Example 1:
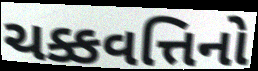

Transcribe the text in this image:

ચક્કવત્તિનો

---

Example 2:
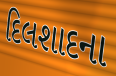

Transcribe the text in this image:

દિલશાદના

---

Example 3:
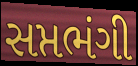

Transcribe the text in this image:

સપ્તભંગી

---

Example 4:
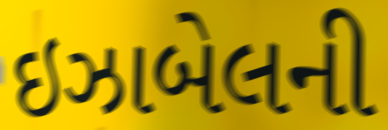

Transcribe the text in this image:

ઇઝાબેલની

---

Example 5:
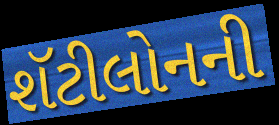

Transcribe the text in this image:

શૅટીલોનની